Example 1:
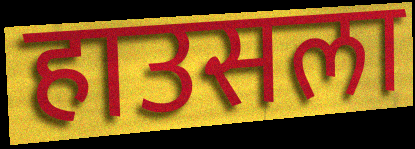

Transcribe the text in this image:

हाउसला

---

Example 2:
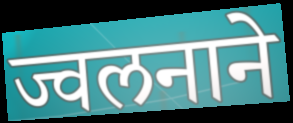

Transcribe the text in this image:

ज्वलनाने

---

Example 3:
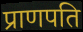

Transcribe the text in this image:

प्राणपति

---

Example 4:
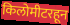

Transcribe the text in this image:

किलोमीटरहून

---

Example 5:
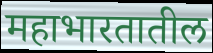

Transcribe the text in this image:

महाभारतातील